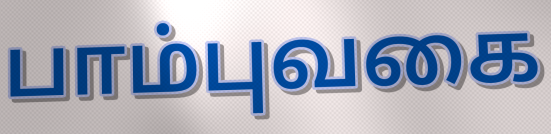
பாம்புவகை